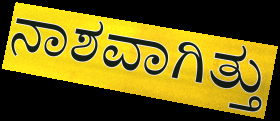
ನಾಶವಾಗಿತ್ತು